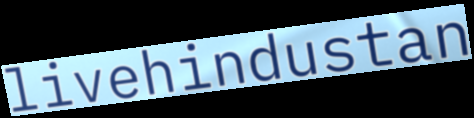
livehindustan